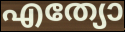
എത്യോ